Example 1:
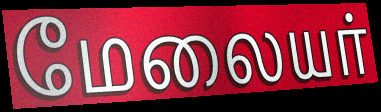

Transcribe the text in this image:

மேலையர்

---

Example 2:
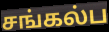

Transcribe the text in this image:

சங்கல்ப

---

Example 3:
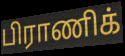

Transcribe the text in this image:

பிராணிக்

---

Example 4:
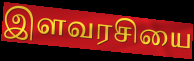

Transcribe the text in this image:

இளவரசியை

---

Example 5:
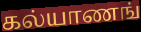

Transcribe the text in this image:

கல்யாணங்